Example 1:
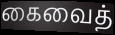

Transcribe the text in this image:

கைவைத்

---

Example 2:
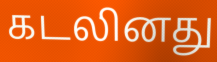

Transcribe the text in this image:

கடலினது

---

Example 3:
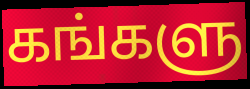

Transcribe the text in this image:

கங்களு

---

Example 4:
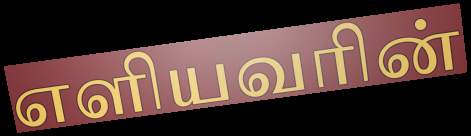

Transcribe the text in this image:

எளியவரின்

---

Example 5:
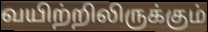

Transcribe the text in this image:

வயிற்றிலிருக்கும்